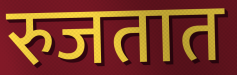
रुजतात